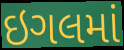
ઇગલમાં